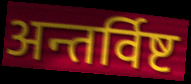
अन्तर्विष्ट